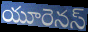
యూరెనస్